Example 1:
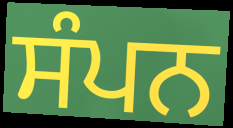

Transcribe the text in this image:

ਸੰਪਨ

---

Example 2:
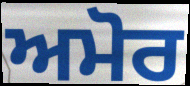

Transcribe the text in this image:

ਅਮੋਰ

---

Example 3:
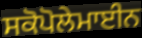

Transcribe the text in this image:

ਸਕੋਪੋਲੇਮਾਈਨ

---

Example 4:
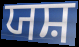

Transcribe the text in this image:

ਯਸ਼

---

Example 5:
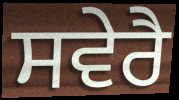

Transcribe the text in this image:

ਸਵੇਰੈ